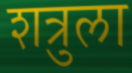
शत्रुला